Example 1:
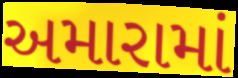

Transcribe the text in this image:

અમારામાં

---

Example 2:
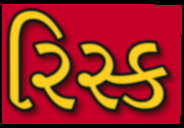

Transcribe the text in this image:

રિસ્ક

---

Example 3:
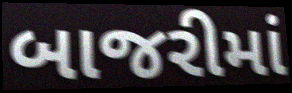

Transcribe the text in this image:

બાજરીમાં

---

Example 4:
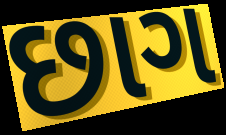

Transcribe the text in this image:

છાગ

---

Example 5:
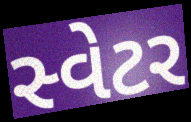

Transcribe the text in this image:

સ્વેટર